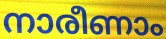
നാരീണാം